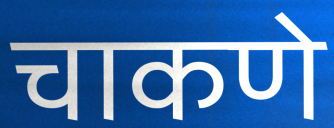
चाकणे